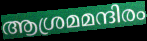
ആശ്രമമന്ദിരം